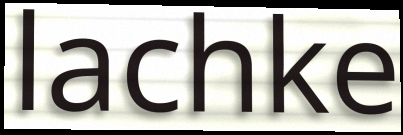
lachke